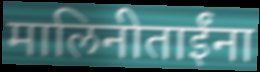
मालिनीताईंना